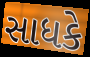
સાધકે